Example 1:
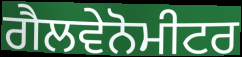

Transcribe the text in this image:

ਗੈਲਵੇਨੋਮੀਟਰ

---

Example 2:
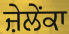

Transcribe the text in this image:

ਜ਼ੇਲੇਂਕਾ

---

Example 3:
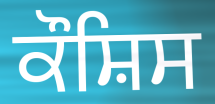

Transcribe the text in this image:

ਕੌਸ਼ਿਸ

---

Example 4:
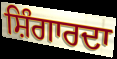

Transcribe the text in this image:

ਸ਼ਿੰਗਾਰਦਾ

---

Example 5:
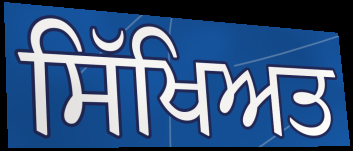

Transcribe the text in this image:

ਸਿੱਖਿਅਤ